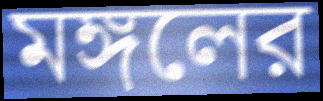
মঙ্গলের